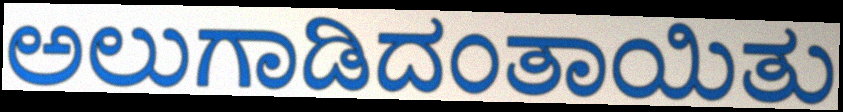
ಅಲುಗಾಡಿದಂತಾಯಿತು